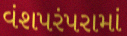
વંશપરંપરામાં